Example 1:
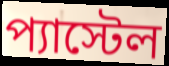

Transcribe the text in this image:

প্যাস্টেল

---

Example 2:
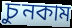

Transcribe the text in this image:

চুনকাম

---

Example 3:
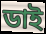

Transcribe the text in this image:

ডাই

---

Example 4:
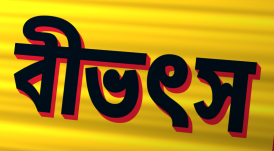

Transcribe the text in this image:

বীভৎস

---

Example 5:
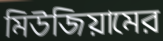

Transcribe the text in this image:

মিউজিয়ামের